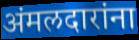
अंमलदारांना